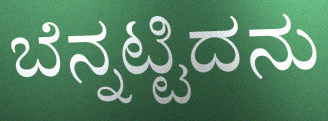
ಬೆನ್ನಟ್ಟಿದನು